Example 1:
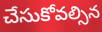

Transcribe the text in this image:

చేసుకోవల్సిన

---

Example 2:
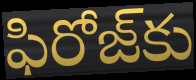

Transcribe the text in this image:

ఫిరోజ్‌కు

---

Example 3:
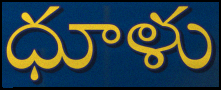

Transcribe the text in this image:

ధూళు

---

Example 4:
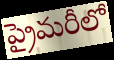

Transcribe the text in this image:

ప్రైమరీలో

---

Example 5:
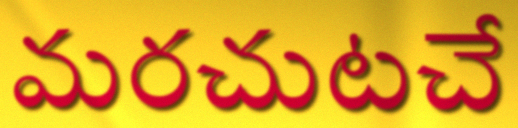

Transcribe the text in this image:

మరచుటచే